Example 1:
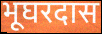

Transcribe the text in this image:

भूघरदास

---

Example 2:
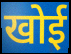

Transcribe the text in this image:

खोई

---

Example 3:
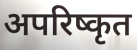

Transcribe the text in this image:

अपरिष्कृत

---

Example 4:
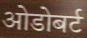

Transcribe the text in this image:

ओडोबर्ट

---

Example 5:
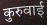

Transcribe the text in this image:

कुरुवाई